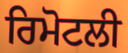
ਰਿਮੋਟਲੀ